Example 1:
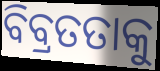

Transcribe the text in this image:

ବିବ୍ରତତାକୁ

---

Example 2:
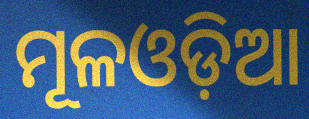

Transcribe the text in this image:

ମୂଳଓଡ଼ିଆ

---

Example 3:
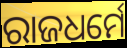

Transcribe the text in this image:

ରାଜଧର୍ମେ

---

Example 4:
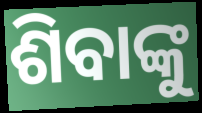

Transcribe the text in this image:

ଶିବାଙ୍କୁ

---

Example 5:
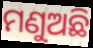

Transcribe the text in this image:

ମଣୁଅଛି